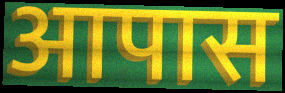
आपास